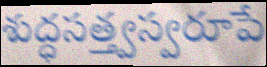
శుద్ధసత్త్వస్వరూపే